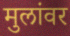
मुलांवर